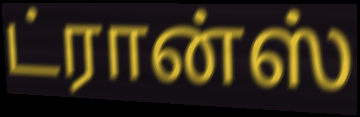
ட்ரான்ஸ்